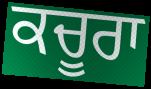
ਕਚੂਰਾ